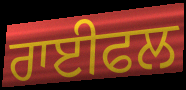
ਰਾਈਫਲ